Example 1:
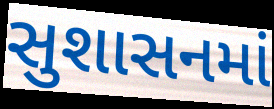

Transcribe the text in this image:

સુશાસનમાં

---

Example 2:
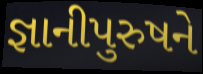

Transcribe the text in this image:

જ્ઞાનીપુરુષને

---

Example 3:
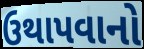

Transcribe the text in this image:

ઉથાપવાનો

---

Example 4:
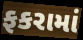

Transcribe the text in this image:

ફકરામાં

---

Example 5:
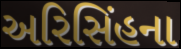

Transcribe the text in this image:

અરિસિંહના